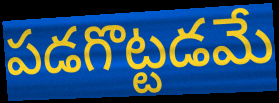
పడగొట్టడమే